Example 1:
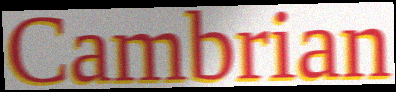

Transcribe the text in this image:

Cambrian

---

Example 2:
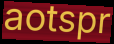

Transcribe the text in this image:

aotspr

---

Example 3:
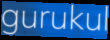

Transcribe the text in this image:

gurukul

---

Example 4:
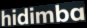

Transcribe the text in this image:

hidimba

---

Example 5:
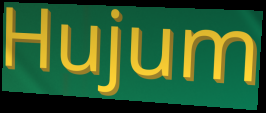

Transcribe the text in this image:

Hujum